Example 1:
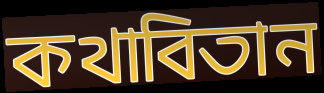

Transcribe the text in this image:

কথাবিতান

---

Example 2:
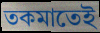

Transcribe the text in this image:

তকমাতেই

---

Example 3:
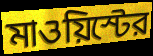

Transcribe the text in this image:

মাওয়িস্টের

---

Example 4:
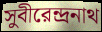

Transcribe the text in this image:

সুবীরেন্দ্রনাথ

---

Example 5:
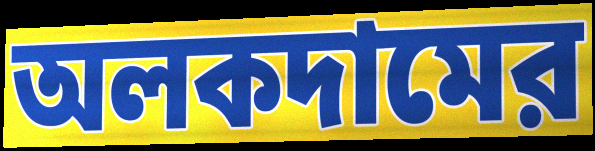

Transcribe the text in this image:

অলকদামের